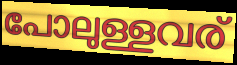
പോലുള്ളവര്